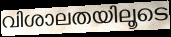
വിശാലതയിലൂടെ